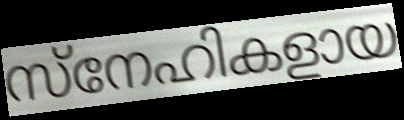
സ്നേഹികളായ